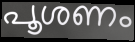
പൂശണം